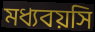
মধ্যবয়সি